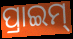
ପ୍ରାଇମ୍